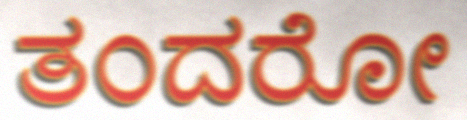
ತಂದರೋ